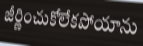
జీర్ణించుకోలేకపోయాను